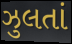
ઝુલતાં